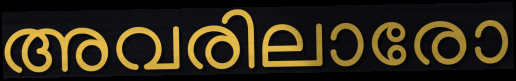
അവരിലാരോ